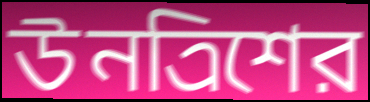
উনত্রিশের